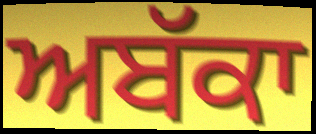
ਅਬੱਕਾ